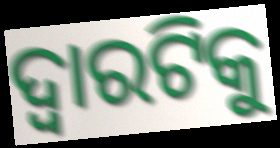
ଦ୍ଵାରଟିକୁ